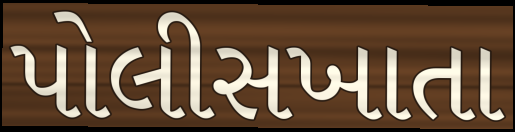
પોલીસખાતા